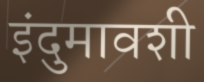
इंदुमावशी